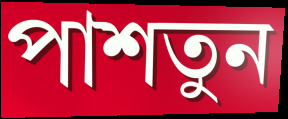
পাশতুন